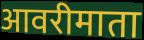
आवरीमाता